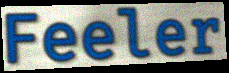
Feeler